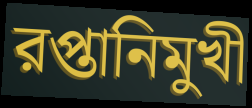
রপ্তানিমুখী